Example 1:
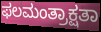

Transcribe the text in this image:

ಫಲಮಂತ್ರಾಕ್ಷತಾ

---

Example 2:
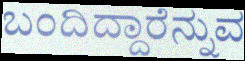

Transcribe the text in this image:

ಬಂದಿದ್ದಾರೆನ್ನುವ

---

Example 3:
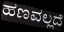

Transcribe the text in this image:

ಹಣವಲ್ಲದೆ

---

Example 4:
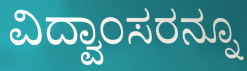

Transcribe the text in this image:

ವಿದ್ವಾಂಸರನ್ನೂ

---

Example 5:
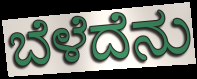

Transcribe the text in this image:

ಬೆಳೆದೆನು